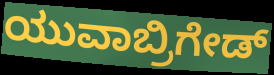
ಯುವಾಬ್ರಿಗೇಡ್